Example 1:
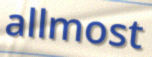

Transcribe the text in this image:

allmost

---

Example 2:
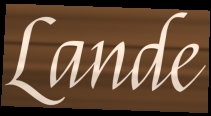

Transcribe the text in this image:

Lande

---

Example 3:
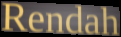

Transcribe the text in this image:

Rendah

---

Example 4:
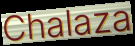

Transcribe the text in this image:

Chalaza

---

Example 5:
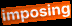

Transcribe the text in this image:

imposing